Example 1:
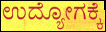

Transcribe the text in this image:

ಉದ್ಯೋಗಕ್ಕೆ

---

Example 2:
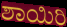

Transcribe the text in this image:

ಶಾಯಿರಿ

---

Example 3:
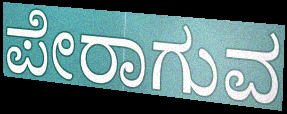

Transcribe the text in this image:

ಪೇರಾಗುವ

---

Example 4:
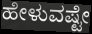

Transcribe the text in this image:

ಹೇಳುವಷ್ಟೇ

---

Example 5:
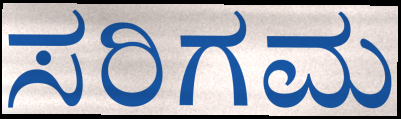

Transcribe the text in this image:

ಸರಿಗಮ